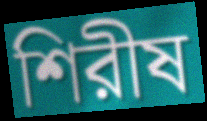
শিরীষ